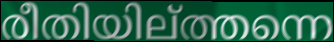
രീതിയില്ത്തന്നെ